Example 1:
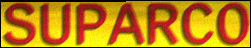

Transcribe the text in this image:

SUPARCO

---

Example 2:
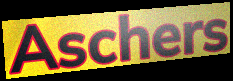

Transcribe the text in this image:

Aschers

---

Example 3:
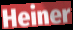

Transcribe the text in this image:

Heiner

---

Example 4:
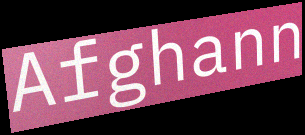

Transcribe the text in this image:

Afghann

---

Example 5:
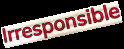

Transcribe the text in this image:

Irresponsible